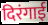
दिरंगाई